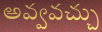
అవ్వవచ్చు